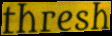
thresh